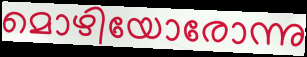
മൊഴിയോരോന്നു